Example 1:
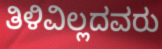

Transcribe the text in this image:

ತಿಳಿವಿಲ್ಲದವರು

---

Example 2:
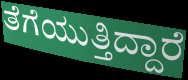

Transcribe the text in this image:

ತೆಗೆಯುತ್ತಿದ್ದಾರೆ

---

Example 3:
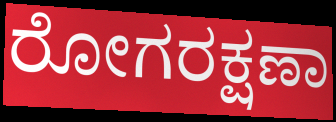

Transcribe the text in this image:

ರೋಗರಕ್ಷಣಾ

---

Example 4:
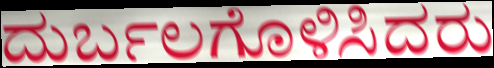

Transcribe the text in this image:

ದುರ್ಬಲಗೊಳಿಸಿದರು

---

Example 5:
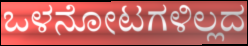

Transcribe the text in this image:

ಒಳನೋಟಗಳಿಲ್ಲದ